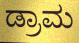
ಡ್ರಾಮ